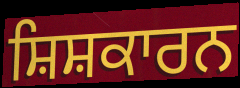
ਸ਼ਿਸ਼ਕਾਰਨ